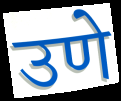
उणे